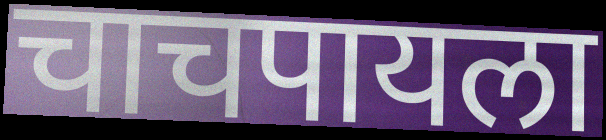
चाचपायला